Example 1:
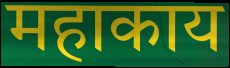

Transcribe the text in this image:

महाकाय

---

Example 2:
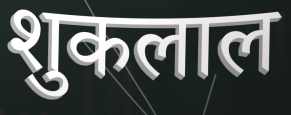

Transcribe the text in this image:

शुकलाल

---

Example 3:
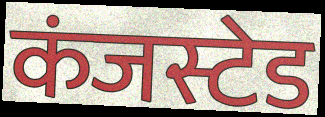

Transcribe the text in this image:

कंजस्टेड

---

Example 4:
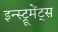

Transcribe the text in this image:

इन्स्ट्रूमेंट्स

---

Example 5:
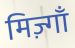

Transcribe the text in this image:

मिज़्गाँ